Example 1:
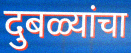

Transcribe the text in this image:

दुबळ्यांचा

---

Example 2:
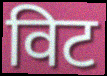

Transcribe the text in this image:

विट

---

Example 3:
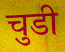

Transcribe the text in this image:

चुडी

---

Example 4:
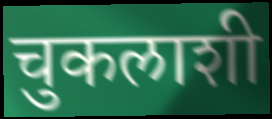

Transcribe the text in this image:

चुकलाशी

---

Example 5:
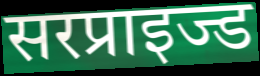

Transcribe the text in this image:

सरप्राइज्ड